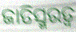
ଜାତିସ୍ମରତ୍ୱ